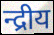
न्द्रीय